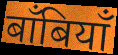
बाँबियाँ